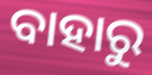
ବାହାରୁ